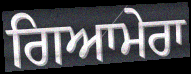
ਗਿਆਮੇਰਾ